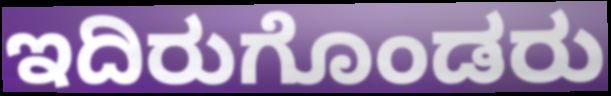
ಇದಿರುಗೊಂಡರು